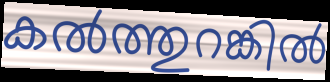
കൽത്തുറങ്കിൽ